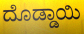
ದೊಡ್ಡಾಯಿ